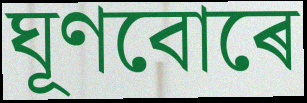
ঘূণবোৰে